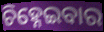
ଚିହ୍ନେଇବାର